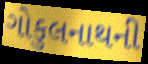
ગોકુલનાથની